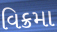
વિક્રમા